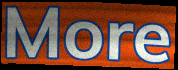
More